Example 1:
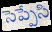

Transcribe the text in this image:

సెప్పేసి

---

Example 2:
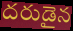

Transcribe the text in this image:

దరుడైన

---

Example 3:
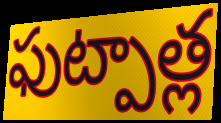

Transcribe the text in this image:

ఫుట్పాత్ల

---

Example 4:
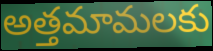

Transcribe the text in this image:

అత్తమామలకు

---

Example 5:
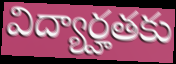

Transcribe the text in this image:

విద్యార్హతకు